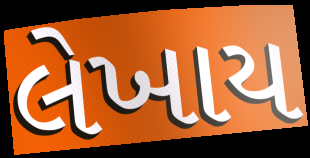
લેખાય